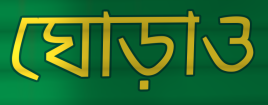
ঘোড়াও